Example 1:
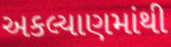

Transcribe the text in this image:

અકલ્યાણમાંથી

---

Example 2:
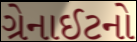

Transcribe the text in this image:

ગ્રેનાઈટનો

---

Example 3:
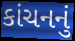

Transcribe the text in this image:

કાંચનનું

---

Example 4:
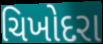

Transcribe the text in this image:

ચિખોદરા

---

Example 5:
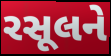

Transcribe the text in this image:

રસૂલને